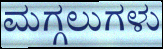
ಮಗ್ಗಲುಗಳು